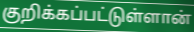
குறிக்கப்பட்டுள்ளான்